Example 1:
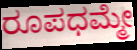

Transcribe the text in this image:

ರೂಪಧಮ್ಮೇ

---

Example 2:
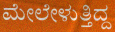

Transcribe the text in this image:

ಮೇಲೇಳುತ್ತಿದ್ದ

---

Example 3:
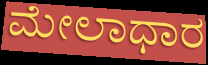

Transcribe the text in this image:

ಮೇಲಾಧಾರ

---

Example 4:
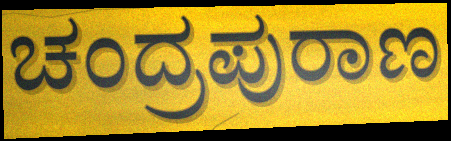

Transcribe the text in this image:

ಚಂದ್ರಪುರಾಣ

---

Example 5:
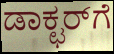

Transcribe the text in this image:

ಡಾಕ್ಟರ್‌ಗೆ